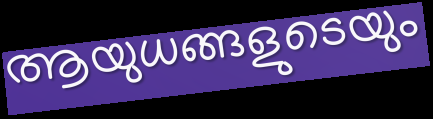
ആയുധങ്ങളുടെയും